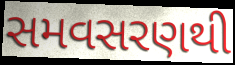
સમવસરણથી